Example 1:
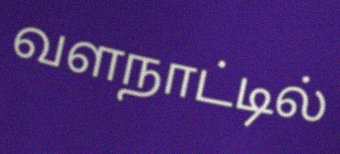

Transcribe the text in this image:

வளநாட்டில்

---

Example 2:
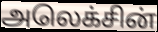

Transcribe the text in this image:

அலெக்சின்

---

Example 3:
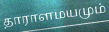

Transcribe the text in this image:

தாராளமயமும்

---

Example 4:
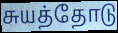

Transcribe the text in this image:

சுயத்தோடு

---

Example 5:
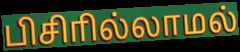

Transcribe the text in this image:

பிசிரில்லாமல்